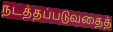
நடத்தப்படுவதைத்